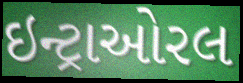
ઇન્ટ્રાઓરલ